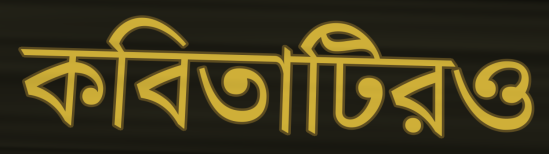
কবিতাটিরও